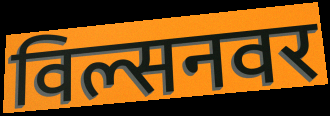
विल्सनवर